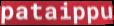
pataippu